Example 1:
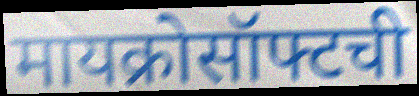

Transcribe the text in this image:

मायक्रोसॉफ्टची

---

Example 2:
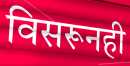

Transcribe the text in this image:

विसरूनही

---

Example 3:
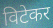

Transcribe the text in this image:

विटेकर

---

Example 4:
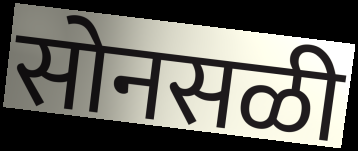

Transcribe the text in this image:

सोनसळी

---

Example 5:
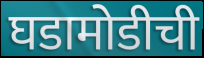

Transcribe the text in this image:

घडामोडीची